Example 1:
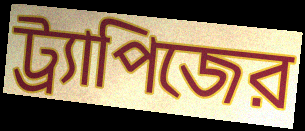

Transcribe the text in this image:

ট্র্যাপিজের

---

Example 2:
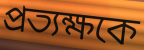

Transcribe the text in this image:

প্রত্যক্ষকে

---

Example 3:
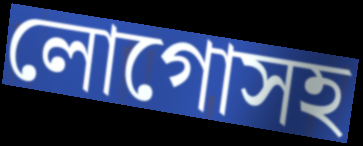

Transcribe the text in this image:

লোগোসহ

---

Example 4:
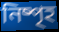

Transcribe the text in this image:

নিষ্পৃহ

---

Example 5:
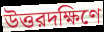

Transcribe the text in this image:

উত্তরদক্ষিণে